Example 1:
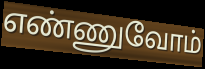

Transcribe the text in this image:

எண்ணுவோம்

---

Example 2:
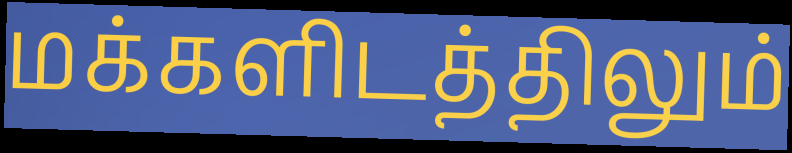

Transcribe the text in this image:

மக்களிடத்திலும்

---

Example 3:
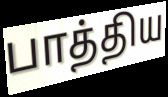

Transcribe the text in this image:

பாத்திய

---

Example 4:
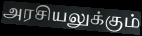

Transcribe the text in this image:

அரசியலுக்கும்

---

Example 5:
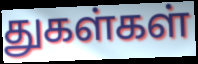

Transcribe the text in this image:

துகள்கள்